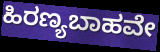
ಹಿರಣ್ಯಬಾಹವೇ